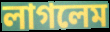
লাগলেম